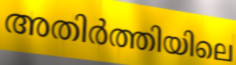
അതിർത്തിയിലെ